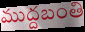
ముద్దబంతి